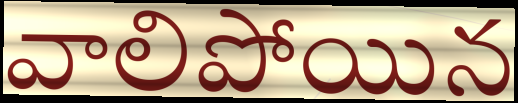
వాలిపోయిన